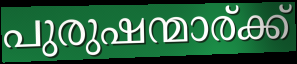
പുരുഷന്മാര്ക്ക്